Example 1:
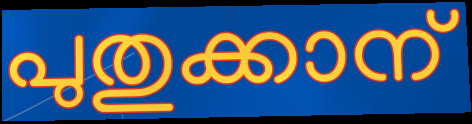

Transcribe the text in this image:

പുതുക്കാന്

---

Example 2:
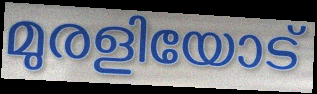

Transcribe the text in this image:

മുരളിയോട്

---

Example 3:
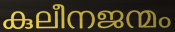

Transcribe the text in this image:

കുലീനജന്മം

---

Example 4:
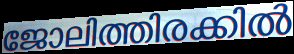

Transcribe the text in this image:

ജോലിത്തിരക്കിൽ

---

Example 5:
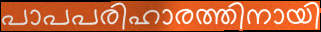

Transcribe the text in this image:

പാപപരിഹാരത്തിനായി